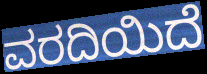
ವರದಿಯಿದೆ